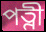
পত্নী